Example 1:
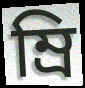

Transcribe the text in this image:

ম্রি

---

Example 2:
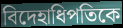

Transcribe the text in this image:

বিদেহাধিপতিকে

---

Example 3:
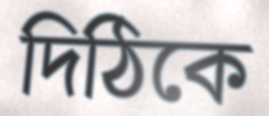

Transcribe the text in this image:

দিঠিকে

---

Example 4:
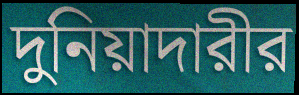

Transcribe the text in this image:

দুনিয়াদারীর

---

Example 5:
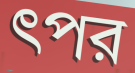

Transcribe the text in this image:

ৎপর